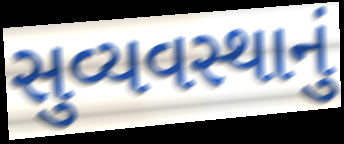
સુવ્યવસ્થાનું